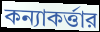
কন্যাকর্ত্তার